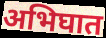
अभिघात